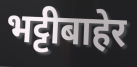
भट्टीबाहेर